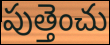
పుత్తెంచు